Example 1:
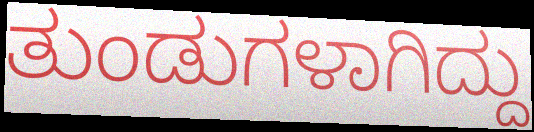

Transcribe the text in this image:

ತುಂಡುಗಳಾಗಿದ್ದು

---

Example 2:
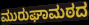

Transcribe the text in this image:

ಮುರುಘಾಮಠದ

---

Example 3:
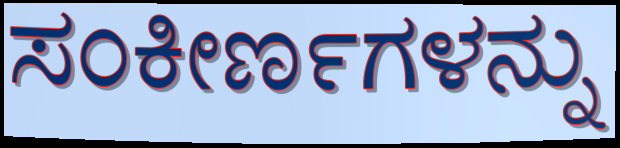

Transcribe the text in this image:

ಸಂಕೀರ್ಣಗಳನ್ನು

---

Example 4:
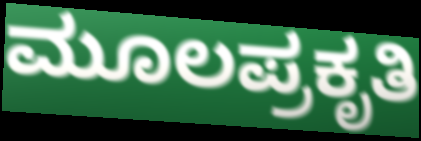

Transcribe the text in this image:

ಮೂಲಪ್ರಕೃತಿ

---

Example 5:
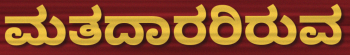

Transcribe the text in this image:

ಮತದಾರರಿರುವ